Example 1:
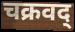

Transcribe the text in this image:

चक्रवद्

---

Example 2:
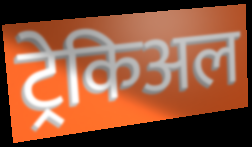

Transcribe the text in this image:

ट्रेकिअल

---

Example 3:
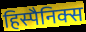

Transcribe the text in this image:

हिस्पैनिक्स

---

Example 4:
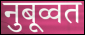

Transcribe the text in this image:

नुबूव्वत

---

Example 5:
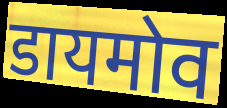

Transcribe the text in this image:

डायमोव